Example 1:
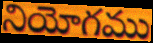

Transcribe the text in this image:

నియోగము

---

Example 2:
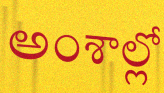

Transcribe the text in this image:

అంశాల్లో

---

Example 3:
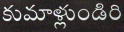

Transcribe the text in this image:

కుమాళ్లుండిరి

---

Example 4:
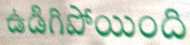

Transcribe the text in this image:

ఉడిగిపోయింది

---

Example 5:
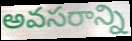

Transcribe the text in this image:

అవసరాన్ని